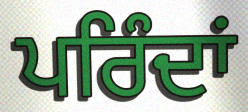
ਪਰਿੰਦਾਂ